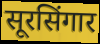
सूरसिंगार